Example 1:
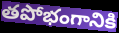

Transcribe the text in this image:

తపోభంగానికి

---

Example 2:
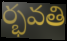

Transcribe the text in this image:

ర్భవతి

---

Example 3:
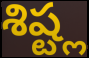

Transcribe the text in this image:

శిష్ట్ల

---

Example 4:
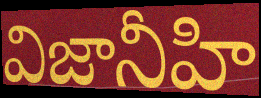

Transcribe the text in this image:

విజానీహి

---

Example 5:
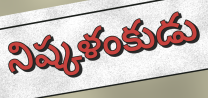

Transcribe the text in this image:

నిష్కళంకుడు